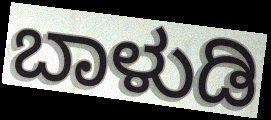
ಬಾಳುಡಿ